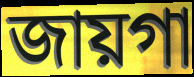
জায়গা